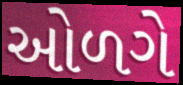
ઓળગે